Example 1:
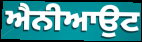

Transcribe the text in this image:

ਐਨੀਆਉਟ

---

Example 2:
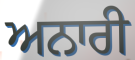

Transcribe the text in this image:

ਅਨਾਰੀ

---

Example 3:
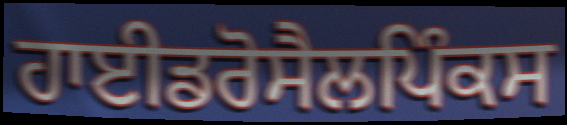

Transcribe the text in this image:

ਹਾਈਡਰੋਸੈਲਪਿੰਕਸ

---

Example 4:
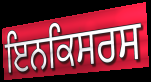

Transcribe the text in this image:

ਇਨਕਿਸਰਸ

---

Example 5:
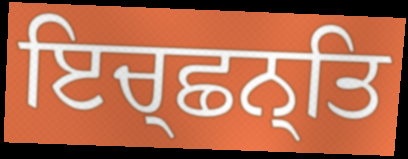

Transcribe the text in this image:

ਇਚ੍ਛਨ੍ਤਿ